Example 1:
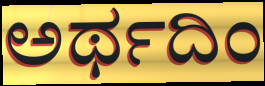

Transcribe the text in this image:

ಅರ್ಥದಿಂ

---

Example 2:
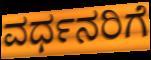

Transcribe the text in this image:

ವರ್ಧನರಿಗೆ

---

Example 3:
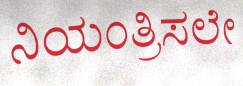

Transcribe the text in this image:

ನಿಯಂತ್ರಿಸಲೇ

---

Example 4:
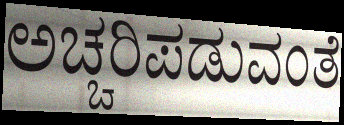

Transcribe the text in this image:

ಅಚ್ಚರಿಪಡುವಂತೆ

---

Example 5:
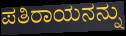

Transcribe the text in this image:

ಪತಿರಾಯನನ್ನು